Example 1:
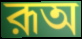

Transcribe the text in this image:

রূঅ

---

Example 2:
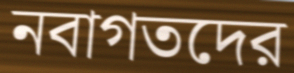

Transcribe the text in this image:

নবাগতদের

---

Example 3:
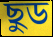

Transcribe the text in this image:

ছুড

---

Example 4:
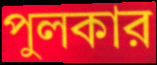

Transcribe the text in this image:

পুলকার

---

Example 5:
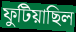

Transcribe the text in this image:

ফুটিয়াছিল